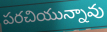
పరచియున్నావు